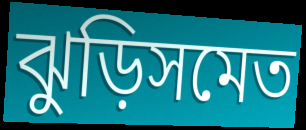
ঝুড়িসমেত